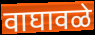
वाघावळे